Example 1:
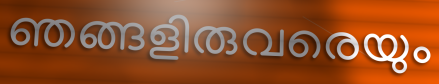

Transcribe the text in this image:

ഞങ്ങളിരുവരെയും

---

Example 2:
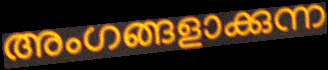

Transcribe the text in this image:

അംഗങ്ങളാക്കുന്ന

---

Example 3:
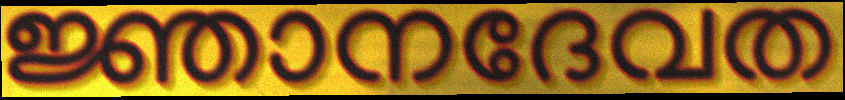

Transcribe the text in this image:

ജ്ഞാനദേവത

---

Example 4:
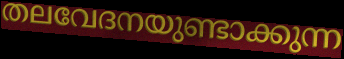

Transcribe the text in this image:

തലവേദനയുണ്ടാക്കുന്ന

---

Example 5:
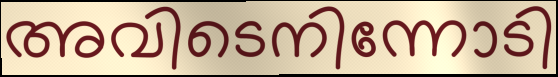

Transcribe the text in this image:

അവിടെനിന്നോടി